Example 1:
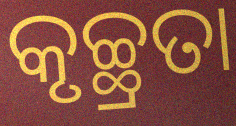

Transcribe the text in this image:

କୃଚ୍ଛ୍ରତା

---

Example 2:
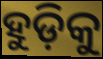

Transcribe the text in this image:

ହୁଡ଼ିକୁ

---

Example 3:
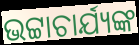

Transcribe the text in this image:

ଭଟ୍ଟାଚାର୍ଯ୍ୟଙ୍କ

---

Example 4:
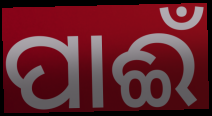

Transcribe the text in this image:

ପାଈଁ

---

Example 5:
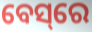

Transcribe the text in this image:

ବେସ୍‌ରେ